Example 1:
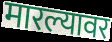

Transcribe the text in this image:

मारल्यावर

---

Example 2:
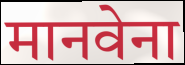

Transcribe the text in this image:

मानवेना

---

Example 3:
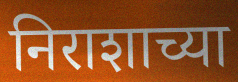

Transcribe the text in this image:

निराशाच्या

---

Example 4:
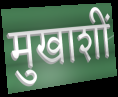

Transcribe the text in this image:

मुखाशीं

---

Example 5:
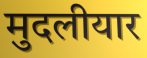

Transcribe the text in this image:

मुदलीयार